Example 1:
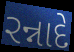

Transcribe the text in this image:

રન્નાદે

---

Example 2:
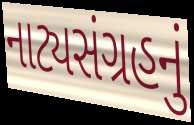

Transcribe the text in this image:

નાટ્યસંગ્રહનું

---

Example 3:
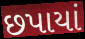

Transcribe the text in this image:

છપાયાં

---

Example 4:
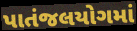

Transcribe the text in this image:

પાતંજલયોગમાં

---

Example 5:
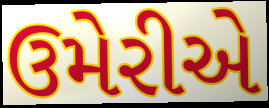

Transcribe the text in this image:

ઉમેરીએ